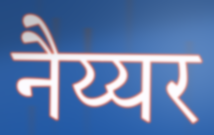
नैय्यर